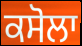
ਕਸੋਲਾ